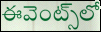
ఈవెంట్స్‌లో